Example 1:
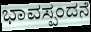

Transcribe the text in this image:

ಭಾವಸ್ಪಂದನೆ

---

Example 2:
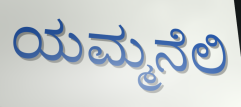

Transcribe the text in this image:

ಯಮ್ಮನೆಲಿ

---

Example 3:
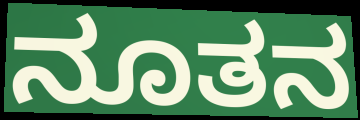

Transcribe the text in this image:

ನೂತನ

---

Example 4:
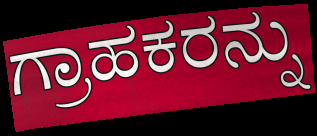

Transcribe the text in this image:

ಗ್ರಾಹಕರನ್ನು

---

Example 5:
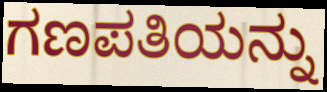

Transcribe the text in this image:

ಗಣಪತಿಯನ್ನು